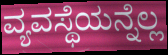
ವ್ಯವಸ್ಥೆಯನ್ನೆಲ್ಲ